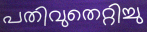
പതിവുതെറ്റിച്ചു